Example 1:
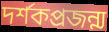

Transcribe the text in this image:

দর্শকপ্রজন্ম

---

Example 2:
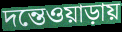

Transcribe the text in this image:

দন্তেওয়াড়ায়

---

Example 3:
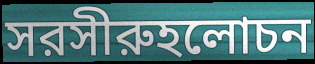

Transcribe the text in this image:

সরসীরুহলোচন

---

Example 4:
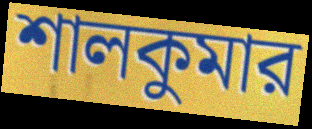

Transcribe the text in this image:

শালকুমার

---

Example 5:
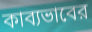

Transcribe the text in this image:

কাব্যভাবের